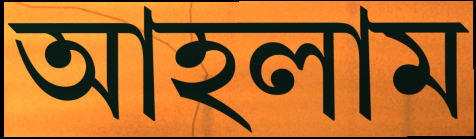
আহলাম